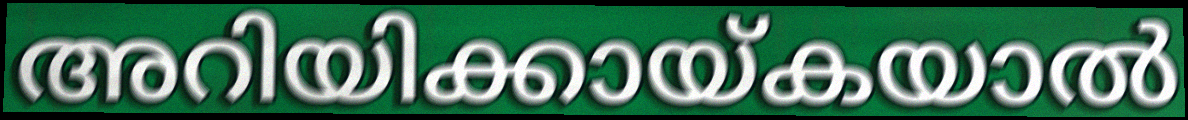
അറിയിക്കായ്കയാൽ